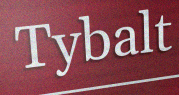
Tybalt